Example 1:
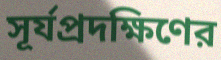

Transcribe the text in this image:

সূর্যপ্রদক্ষিণের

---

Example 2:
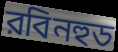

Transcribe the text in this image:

রবিনহুড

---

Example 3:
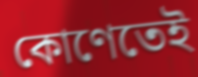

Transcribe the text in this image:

কোণেতেই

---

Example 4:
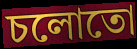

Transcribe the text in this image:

চলোতো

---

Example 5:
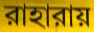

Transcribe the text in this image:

রাহারায়